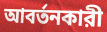
আবর্তনকারী